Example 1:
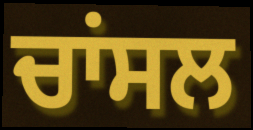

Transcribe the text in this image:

ਚਾਂਸਲ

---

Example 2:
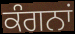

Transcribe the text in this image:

ਕੰਗਨਾਂ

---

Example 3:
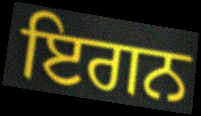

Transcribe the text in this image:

ਇਗਨ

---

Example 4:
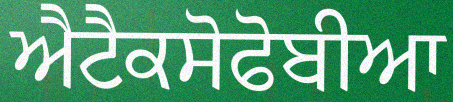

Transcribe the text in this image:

ਐਟੈਕਸੋਫੋਬੀਆ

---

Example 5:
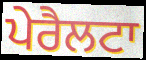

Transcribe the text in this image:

ਪੇਰੈਲਟਾ